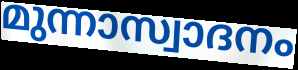
മുന്നാസ്വാദനം